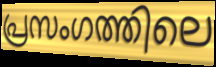
പ്രസംഗത്തിലെ